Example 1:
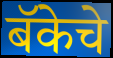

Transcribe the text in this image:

बॅकेचे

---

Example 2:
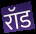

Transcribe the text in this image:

रॉड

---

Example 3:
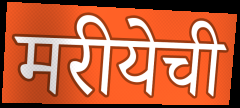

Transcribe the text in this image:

मरीयेची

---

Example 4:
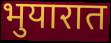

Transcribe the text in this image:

भुयारात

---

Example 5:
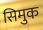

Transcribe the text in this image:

सिमुक